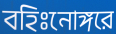
বহিঃনোঙ্গরে